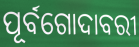
ପୂର୍ବଗୋଦାବରୀ